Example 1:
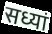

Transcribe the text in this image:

सध्यां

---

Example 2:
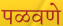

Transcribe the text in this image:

पळवणे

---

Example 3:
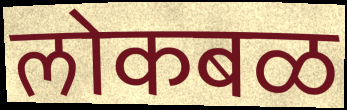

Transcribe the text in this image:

लोकबळ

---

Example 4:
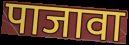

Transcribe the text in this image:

पाजावा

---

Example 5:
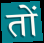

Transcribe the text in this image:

तों